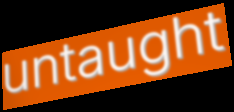
untaught